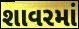
શાવરમાં